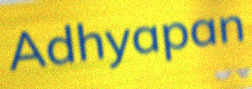
Adhyapan